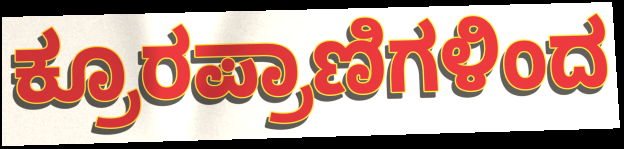
ಕ್ರೂರಪ್ರಾಣಿಗಳಿಂದ